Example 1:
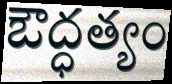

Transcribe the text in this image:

ఔద్ధత్యం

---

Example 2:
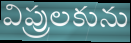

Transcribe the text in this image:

విప్రులకును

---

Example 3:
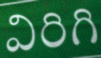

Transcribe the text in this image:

విరిగి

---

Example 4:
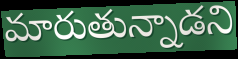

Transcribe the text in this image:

మారుతున్నాడని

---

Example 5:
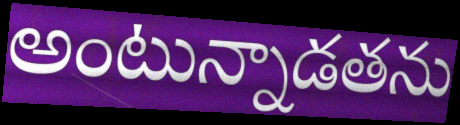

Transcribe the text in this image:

అంటున్నాడతను